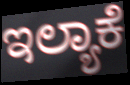
ಇಲ್ಯಾಕೆ